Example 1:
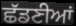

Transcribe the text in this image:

ਛੱਡਣੀਆਂ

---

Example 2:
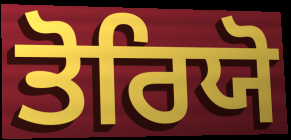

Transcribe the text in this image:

ਤੋਰਿਯੋ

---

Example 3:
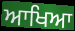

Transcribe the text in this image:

ਆਖਿਆ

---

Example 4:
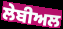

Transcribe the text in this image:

ਲੇਬੀਅਲ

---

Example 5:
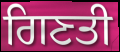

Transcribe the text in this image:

ਗਿਣਤੀ